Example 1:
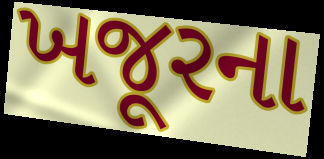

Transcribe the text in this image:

ખજૂરના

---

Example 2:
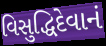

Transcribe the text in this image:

વિસુદ્ધિદેવાનં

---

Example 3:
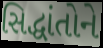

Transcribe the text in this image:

સિદ્ધાંતોને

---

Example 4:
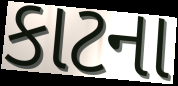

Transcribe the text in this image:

કાટના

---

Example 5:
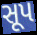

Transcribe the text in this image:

સૂપ